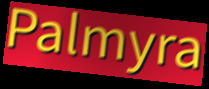
Palmyra